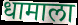
धामाला